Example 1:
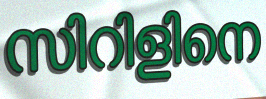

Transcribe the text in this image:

സിറിളിനെ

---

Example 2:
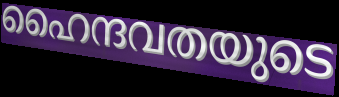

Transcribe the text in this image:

ഹൈന്ദവതയുടെ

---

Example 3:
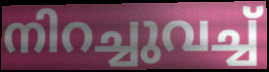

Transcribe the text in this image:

നിറച്ചുവച്ച്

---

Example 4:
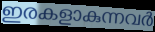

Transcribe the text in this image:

ഇരകളാകുന്നവർ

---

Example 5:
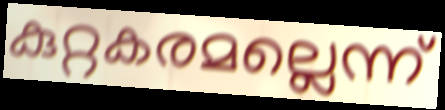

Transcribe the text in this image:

കുറ്റകരമല്ലെന്ന്